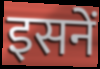
इसनें